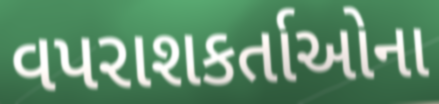
વપરાશકર્તાઓના